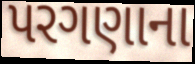
પરગણાના